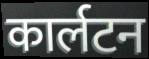
कार्लटन